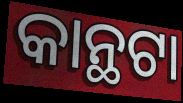
କାନ୍ଥଟା